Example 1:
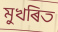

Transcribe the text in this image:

মুখৰিত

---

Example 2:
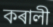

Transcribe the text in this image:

কৰালী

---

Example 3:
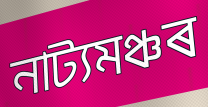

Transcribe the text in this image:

নাট্যমঞ্চৰ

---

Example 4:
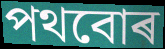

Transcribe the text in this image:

পথবোৰ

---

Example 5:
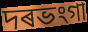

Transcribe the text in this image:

দৰভংগা